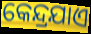
କେନ୍ଦ୍ରଯାଏ